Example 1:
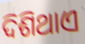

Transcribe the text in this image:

ଦିଶିଥାଏ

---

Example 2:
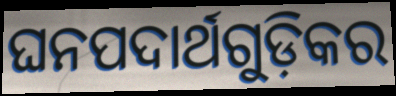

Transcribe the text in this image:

ଘନପଦାର୍ଥଗୁଡ଼ିକର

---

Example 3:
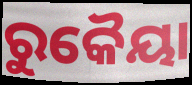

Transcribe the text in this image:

ରୁକୈୟା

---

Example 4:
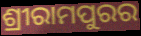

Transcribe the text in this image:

ଶ୍ରୀରାମପୁରର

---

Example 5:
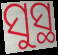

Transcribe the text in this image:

ସୁସ୍ଥ